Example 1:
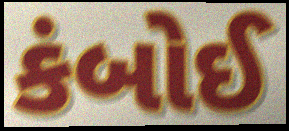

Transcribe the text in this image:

કંબોઈ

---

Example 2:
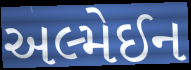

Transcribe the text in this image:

અલ્મેઈન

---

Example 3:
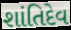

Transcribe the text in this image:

શાંતિદેવ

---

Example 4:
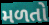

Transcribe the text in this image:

મળતો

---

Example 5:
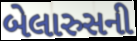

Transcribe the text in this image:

બેલારુસની